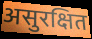
असुरक्षित